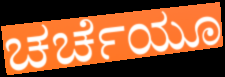
ಚರ್ಚೆಯೂ